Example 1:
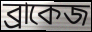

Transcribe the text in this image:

ব্রাকেজ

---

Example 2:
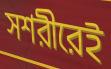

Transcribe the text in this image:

সশরীরেই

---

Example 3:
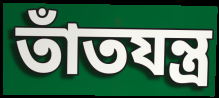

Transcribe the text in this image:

তাঁতযন্ত্র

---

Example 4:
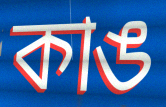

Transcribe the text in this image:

কাঙ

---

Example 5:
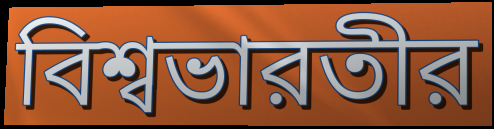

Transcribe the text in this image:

বিশ্বভারতীর